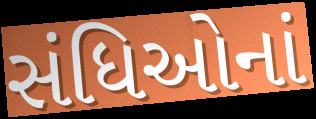
સંધિઓનાં